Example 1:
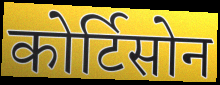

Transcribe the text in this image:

कोर्टिसोन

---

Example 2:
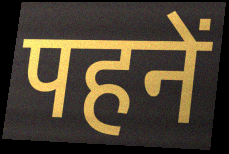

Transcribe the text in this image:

पहनें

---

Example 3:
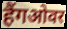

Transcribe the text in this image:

हैंगओवर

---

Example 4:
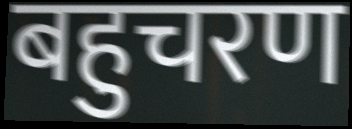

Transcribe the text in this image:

बहुचरण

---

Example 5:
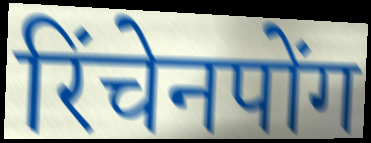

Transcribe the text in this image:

रिंचेनपोंग